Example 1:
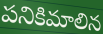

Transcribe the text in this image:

పనికిమాలిన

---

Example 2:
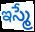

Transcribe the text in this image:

ఇస్మే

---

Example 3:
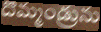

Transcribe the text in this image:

దొమ్మండ్రును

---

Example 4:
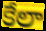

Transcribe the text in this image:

కేలా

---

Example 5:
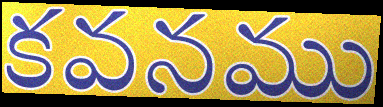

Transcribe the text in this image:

కవనము